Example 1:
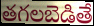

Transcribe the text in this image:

తగలబెడితే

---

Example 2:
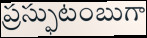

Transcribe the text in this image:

ప్రస్ఫుటంబుగా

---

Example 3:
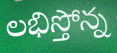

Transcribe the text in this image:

లభిస్తోన్న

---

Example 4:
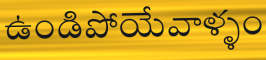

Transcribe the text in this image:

ఉండిపోయేవాళ్ళం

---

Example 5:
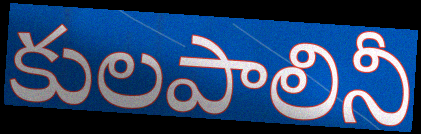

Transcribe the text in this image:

కులపాలినీ